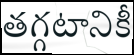
తగ్గటానికీ